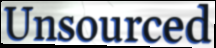
Unsourced